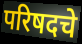
परिषदचे